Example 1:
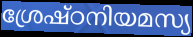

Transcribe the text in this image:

ശ്രേഷ്ഠനിയമസ്യ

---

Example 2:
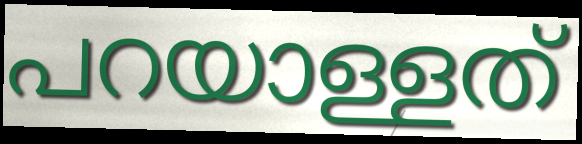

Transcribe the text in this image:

പറയാള്ളത്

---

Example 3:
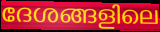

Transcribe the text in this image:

ദേശങ്ങളിലെ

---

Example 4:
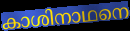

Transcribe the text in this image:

കാശിനാഥനെ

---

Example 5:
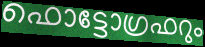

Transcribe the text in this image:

ഫൊട്ടോഗ്രഫറും